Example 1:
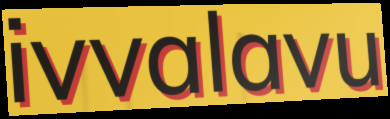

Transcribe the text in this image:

ivvalavu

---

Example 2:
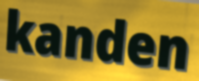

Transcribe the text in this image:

kanden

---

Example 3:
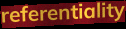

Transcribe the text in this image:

referentiality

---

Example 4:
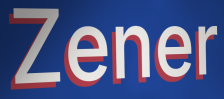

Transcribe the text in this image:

Zener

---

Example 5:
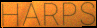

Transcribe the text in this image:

HARPS